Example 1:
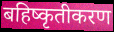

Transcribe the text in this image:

बहिष्कृतीकरण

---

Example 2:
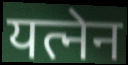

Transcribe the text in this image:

यत्‍नेन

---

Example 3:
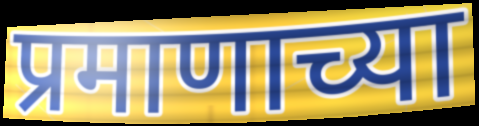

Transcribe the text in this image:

प्रमाणाच्या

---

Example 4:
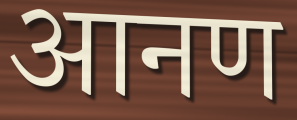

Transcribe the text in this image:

आनण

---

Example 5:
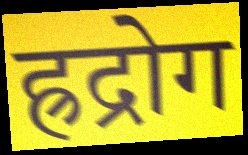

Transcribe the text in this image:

ह्रद्रोग